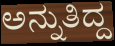
ಅನ್ನುತಿದ್ದ